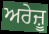
ਅਰੇਜ਼ੂ